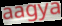
aagya